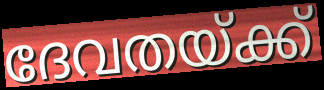
ദേവതയ്ക്ക്